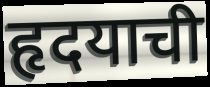
हृदयाची